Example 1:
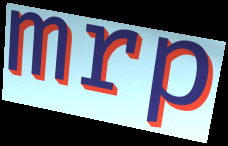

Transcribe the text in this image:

mrp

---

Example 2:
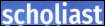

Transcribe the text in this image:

scholiast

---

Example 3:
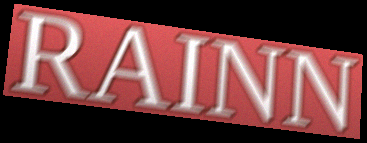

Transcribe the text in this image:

RAINN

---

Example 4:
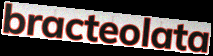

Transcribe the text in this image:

bracteolata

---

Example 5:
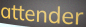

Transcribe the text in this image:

attender